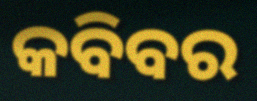
କବିବର